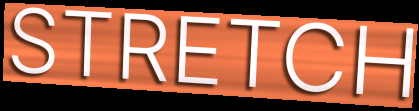
STRETCH